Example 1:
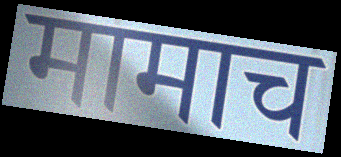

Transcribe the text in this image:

मामाच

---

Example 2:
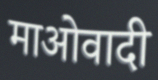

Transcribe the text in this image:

माओवादी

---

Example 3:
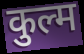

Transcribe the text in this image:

कुल्म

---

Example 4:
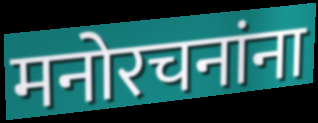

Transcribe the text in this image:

मनोरचनांना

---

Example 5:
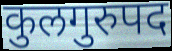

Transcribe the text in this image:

कुलगुरुपद